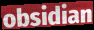
obsidian